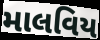
માલવિય